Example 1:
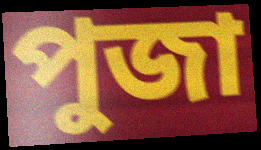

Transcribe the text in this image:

পুজা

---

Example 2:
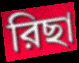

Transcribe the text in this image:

রিছা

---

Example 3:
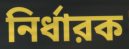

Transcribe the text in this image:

নির্ধারক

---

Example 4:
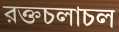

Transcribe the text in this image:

রক্তচলাচল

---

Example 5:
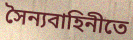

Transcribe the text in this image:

সৈন্যবাহিনীতে